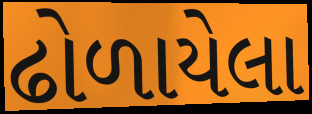
ઢોળાયેલા